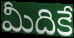
మీదికే